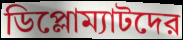
ডিপ্লোম্যাটদের